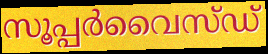
സൂപ്പർവൈസ്ഡ്